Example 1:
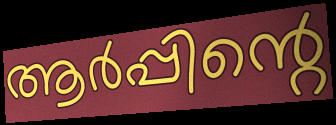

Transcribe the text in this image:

ആർപ്പിന്റെ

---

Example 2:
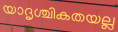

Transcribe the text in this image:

യാദൃശ്ചികതയല്ല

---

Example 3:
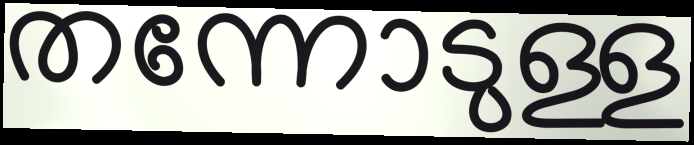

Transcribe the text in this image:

തന്നോടുള്ള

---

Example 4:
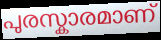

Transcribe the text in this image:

പുരസ്കാരമാണ്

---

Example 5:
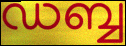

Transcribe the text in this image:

ഡബ്ബ